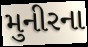
મુનીરના